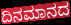
ದಿನಮಾನದ